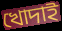
খোদাই